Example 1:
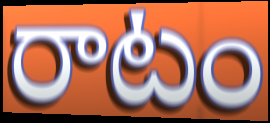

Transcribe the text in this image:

రాటం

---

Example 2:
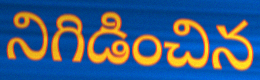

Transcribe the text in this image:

నిగిడించిన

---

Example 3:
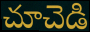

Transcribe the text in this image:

చూచెడి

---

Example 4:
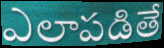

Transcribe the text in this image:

ఎలాపడితే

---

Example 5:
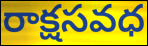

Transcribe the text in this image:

రాక్షసవధ